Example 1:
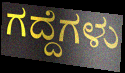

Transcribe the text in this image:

ಗದ್ದೆಗಳು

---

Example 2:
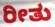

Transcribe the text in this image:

ರೀತು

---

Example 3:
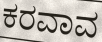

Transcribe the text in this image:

ಕರವಾವ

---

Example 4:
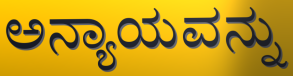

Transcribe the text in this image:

ಅನ್ಯಾಯವನ್ನು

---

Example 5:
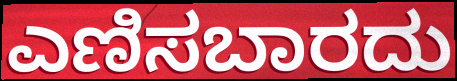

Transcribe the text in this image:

ಎಣಿಸಬಾರದು